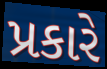
પ્રકારે